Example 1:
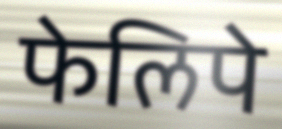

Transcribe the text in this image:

फेलिपे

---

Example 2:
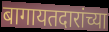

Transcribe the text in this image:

बागायतदारांच्या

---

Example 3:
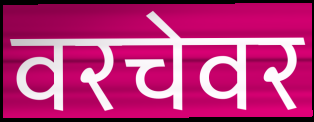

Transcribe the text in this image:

वरचेवर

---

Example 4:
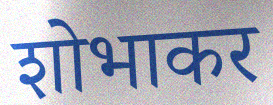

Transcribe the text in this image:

शोभाकर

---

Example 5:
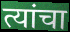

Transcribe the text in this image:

त्यांचा